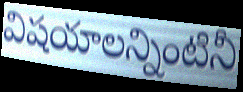
విషయాలన్నింటినీ